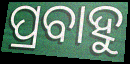
ପ୍ରବାହୁ